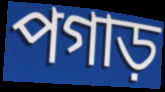
পগাড়